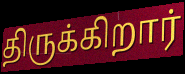
திருக்கிறார்